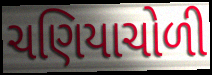
ચણિયાચોળી